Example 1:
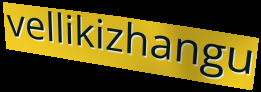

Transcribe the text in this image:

vellikizhangu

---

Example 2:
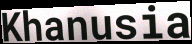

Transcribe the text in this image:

Khanusia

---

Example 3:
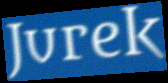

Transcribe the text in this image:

Jurek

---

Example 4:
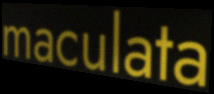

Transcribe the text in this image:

maculata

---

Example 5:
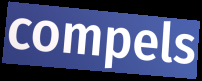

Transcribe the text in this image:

compels